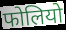
फोलियो